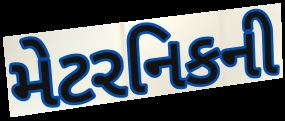
મેટરનિકની